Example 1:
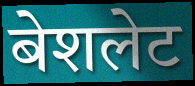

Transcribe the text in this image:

बेशलेट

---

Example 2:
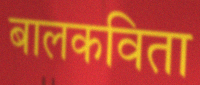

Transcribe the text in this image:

बालकविता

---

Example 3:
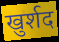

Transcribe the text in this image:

खुर्शद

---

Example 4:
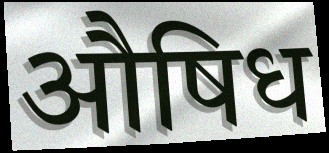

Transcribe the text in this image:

औषिध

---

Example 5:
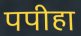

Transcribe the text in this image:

पपीहा